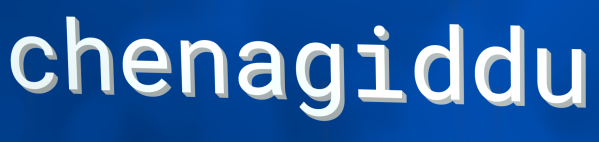
chenagiddu